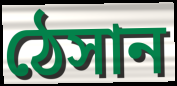
ঠেসান